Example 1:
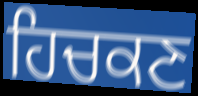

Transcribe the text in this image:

ਹਿਚਕਣ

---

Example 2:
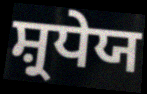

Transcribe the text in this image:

ਸ਼੍ਰਧੇਯ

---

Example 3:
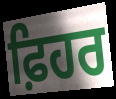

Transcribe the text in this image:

ਫ਼ਿਹਰ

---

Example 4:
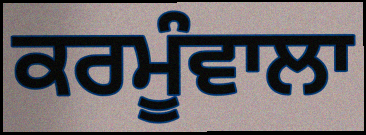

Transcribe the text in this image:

ਕਰਮੂੰਵਾਲਾ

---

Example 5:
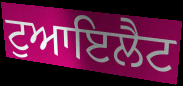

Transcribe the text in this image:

ਟੁਆਇਲੈਟ